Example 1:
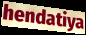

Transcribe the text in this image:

hendatiya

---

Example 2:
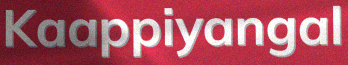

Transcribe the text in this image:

Kaappiyangal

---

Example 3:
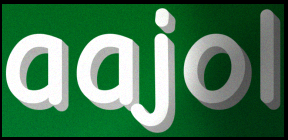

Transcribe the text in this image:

aajol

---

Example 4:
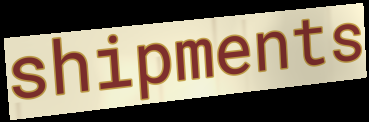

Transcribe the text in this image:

shipments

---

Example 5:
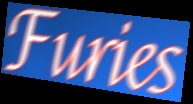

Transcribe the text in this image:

Furies